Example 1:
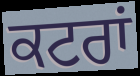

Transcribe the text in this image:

ਕਟਰਾਂ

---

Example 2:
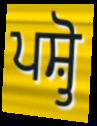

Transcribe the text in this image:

ਪਸ਼੍ਤੋ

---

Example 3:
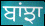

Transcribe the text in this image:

ਬਾਂਝਾ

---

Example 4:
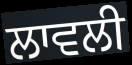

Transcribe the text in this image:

ਲਾਵਲੀ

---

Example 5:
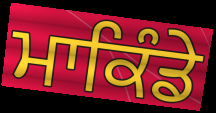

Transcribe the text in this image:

ਮਾਕਿੰਡੇ